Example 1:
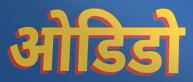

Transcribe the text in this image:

ओडिडो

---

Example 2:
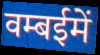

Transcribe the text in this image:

वम्बईमें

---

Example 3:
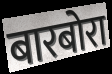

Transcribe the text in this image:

बारबोरा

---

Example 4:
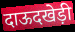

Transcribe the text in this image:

दाऊदखेड़ी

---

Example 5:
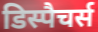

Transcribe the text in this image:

डिस्पैचर्स